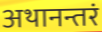
अथानन्तरं